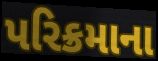
પરિક્રમાના